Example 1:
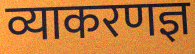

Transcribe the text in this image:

व्याकरणज्ञ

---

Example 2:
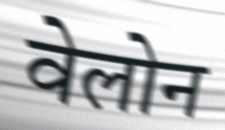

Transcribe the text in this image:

वेलोन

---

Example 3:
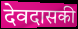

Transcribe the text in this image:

देवदासकी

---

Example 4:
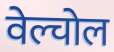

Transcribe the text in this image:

वेल्चोल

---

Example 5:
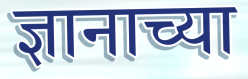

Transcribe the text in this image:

ज्ञानाच्या